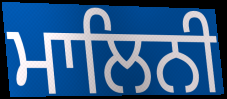
ਮਾਲਿਨੀ